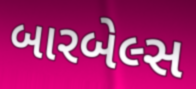
બારબેલ્સ